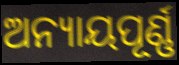
ଅନ୍ୟାୟପୂର୍ଣ୍ଣ